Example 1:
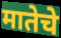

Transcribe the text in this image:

मातेचे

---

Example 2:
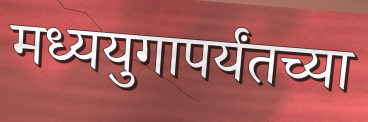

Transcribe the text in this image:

मध्ययुगापर्यंतच्या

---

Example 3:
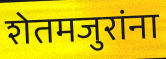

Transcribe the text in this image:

शेतमजुरांना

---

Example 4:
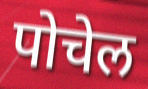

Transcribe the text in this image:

पोचेल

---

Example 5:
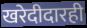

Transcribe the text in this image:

खरेदीदारही